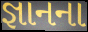
જ્ઞાનના